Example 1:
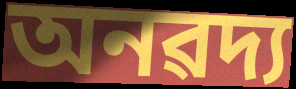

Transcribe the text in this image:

অনৱদ্য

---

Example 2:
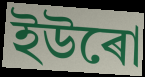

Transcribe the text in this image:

ইউৰো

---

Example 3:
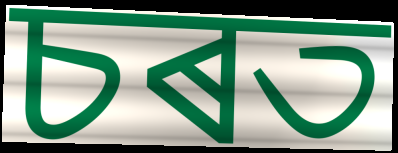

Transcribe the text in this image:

চৰত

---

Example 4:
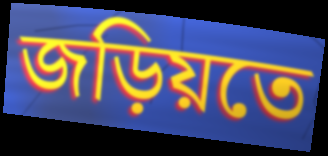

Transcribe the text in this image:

জড়িয়তে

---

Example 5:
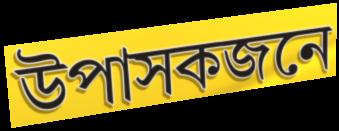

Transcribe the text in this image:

উপাসকজনে